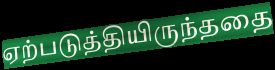
ஏற்படுத்தியிருந்ததை